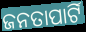
ଜନତାପାର୍ଟି